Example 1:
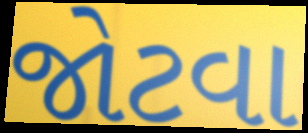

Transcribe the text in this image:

જોટવા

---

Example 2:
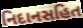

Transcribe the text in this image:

નિદાનસહિત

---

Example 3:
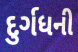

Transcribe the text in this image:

દુર્ગધની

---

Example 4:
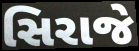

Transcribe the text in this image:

સિરાજે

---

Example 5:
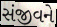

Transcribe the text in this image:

સંજીવને